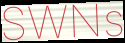
SWNs